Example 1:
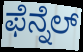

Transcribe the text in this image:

ಫೆನ್ನೆಲ್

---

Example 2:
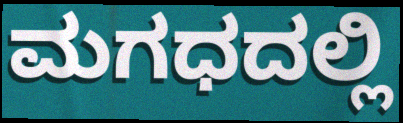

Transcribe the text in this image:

ಮಗಧದಲ್ಲಿ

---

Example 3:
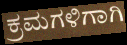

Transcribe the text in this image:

ಕ್ರಮಗಳಿಗಾಗಿ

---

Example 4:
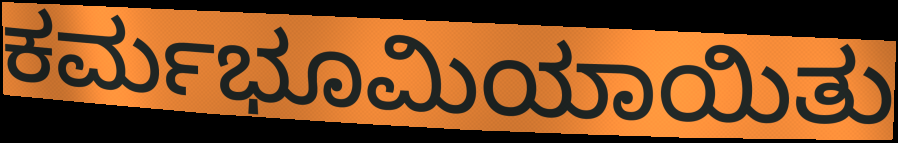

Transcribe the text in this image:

ಕರ್ಮಭೂಮಿಯಾಯಿತು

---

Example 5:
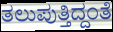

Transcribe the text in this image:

ತಲುಪುತ್ತಿದ್ದಂತೆ